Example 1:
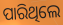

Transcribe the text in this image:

ପାରିଥିଲେ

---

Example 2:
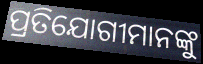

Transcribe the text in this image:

ପ୍ରତିଯୋଗୀମାନଙ୍କୁ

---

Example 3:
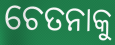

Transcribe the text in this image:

ଚେତନାକୁ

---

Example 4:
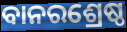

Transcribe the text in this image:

ବାନରଶ୍ରେଷ୍ଠ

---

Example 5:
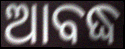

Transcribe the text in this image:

ଆବଦ୍ଧ